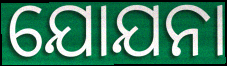
ଯୋଯନା